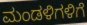
ಮಂಡಳಿಗಳಿಗೆ